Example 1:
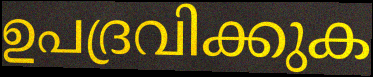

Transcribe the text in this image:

ഉപദ്രവിക്കുക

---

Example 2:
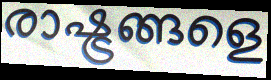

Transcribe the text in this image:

രാഷ്ട്രങ്ങളെ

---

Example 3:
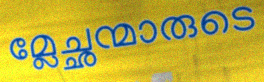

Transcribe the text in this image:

മ്ലേച്ഛന്മാരുടെ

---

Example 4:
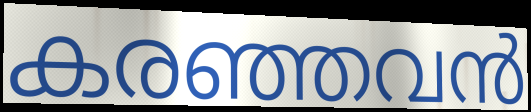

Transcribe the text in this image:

കരഞ്ഞവൻ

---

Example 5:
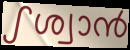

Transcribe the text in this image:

ഽശ്വാൻ